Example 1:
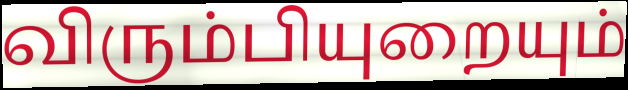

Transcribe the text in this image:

விரும்பியுறையும்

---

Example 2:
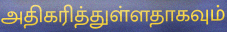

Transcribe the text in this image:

அதிகரித்துள்ளதாகவும்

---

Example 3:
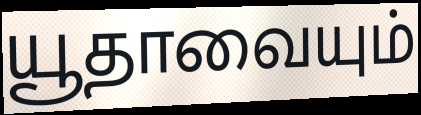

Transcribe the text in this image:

யூதாவையும்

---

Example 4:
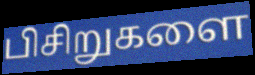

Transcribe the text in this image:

பிசிறுகளை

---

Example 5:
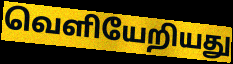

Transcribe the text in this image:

வெளியேறியது